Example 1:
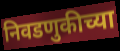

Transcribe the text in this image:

निवडणुकीच्या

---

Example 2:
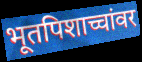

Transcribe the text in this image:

भूतपिशाच्चांवर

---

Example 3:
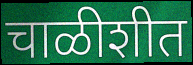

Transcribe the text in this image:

चाळीशीत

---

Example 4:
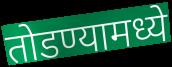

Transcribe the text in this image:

तोडण्यामध्ये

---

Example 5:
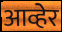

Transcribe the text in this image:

आव्हेर